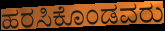
ಹರಸಿಕೊಂಡವರು